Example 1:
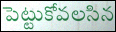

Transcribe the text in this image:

పెట్టుకోవలసిన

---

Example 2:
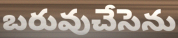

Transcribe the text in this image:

బరువుచేసెను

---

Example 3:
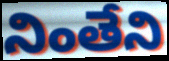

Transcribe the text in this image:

నింతేని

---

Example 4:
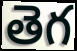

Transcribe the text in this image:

తెగ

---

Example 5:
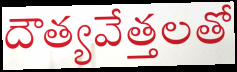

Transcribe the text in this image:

దౌత్యవేత్తలతో